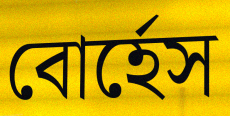
বোর্হেস